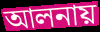
আলনায়